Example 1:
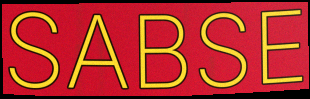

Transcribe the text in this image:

SABSE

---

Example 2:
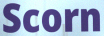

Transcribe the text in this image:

Scorn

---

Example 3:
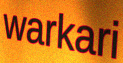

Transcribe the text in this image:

warkari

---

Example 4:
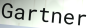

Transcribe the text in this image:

Gartner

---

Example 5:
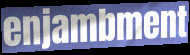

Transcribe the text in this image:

enjambment